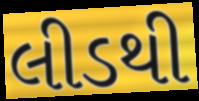
લીડથી